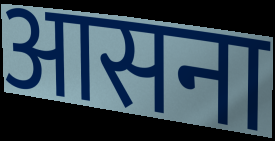
आसना